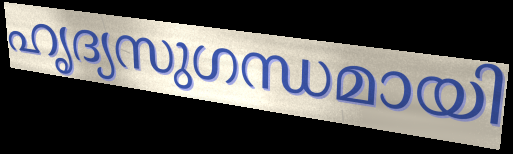
ഹൃദ്യസുഗന്ധമായി